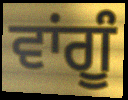
ਵਾਂਗੂੰ